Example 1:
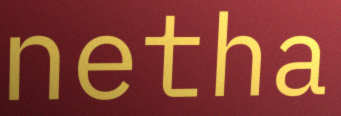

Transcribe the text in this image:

netha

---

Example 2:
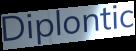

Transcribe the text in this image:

Diplontic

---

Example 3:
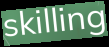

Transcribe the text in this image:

skilling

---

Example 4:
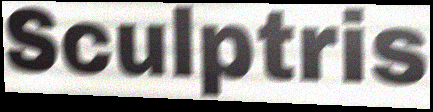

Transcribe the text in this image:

Sculptris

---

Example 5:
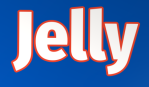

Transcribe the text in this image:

Jelly